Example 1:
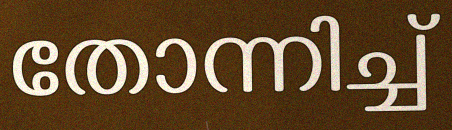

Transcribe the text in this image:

തോന്നിച്ച്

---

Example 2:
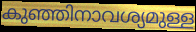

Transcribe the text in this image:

കുഞ്ഞിനാവശ്യമുള്ള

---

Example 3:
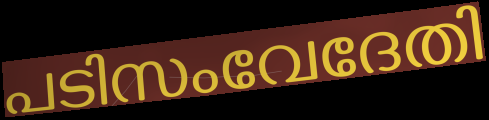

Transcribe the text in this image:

പടിസംവേദേതി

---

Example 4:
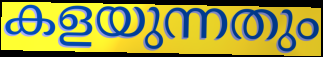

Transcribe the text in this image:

കളയുന്നതും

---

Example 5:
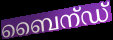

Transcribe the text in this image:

ബൈന്ഡ്